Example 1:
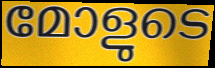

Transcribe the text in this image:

മോളുടെ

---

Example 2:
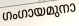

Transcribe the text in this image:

ഗംഗായമുനാ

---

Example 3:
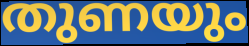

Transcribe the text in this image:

തുണയും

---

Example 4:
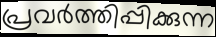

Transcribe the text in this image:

പ്രവർത്തിപ്പിക്കുന്ന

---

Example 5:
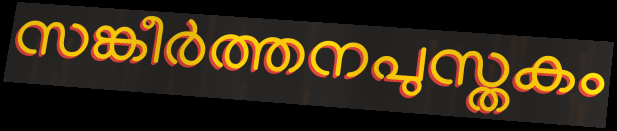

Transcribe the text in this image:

സങ്കീർത്തനപുസ്തകം